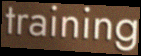
training